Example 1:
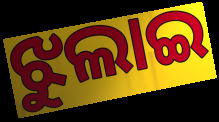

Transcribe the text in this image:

ଝୁଲାଇ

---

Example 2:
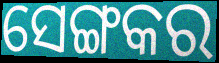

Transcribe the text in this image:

ସେଙ୍ଗକର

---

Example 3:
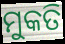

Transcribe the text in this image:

ମୁକତି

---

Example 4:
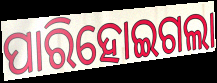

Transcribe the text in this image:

ପାରିହୋଇଗଲା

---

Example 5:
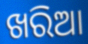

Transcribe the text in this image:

ଖରିଆ